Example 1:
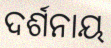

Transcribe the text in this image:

ଦର୍ଶନାୟ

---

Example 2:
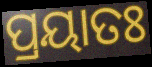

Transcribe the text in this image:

ପ୍ରୟାତଃ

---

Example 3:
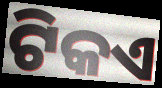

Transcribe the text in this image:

ଟିକଏ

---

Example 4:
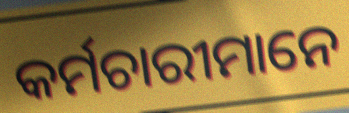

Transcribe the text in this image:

କର୍ମଚାରୀମାନେ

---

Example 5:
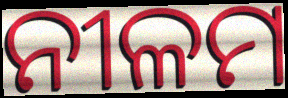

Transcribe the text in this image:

ନୀଳମ